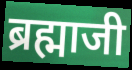
ब्रह्माजी